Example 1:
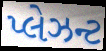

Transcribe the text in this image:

પ્લેઝન્ટ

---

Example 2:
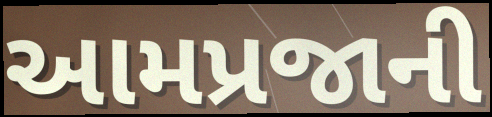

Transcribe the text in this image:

આમપ્રજાની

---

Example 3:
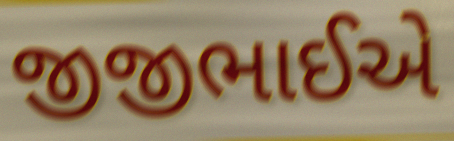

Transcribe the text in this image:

જીજીભાઈએ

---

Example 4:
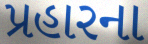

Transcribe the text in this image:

પ્રહારના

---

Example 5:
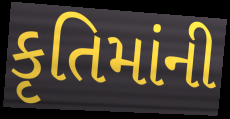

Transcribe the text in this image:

કૃતિમાંની